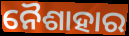
ନୈଶାହାର